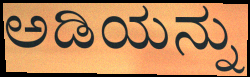
ಅಡಿಯನ್ನು